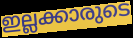
ഇല്ലക്കാരുടെ